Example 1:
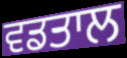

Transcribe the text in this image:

ਵਡਤਾਲ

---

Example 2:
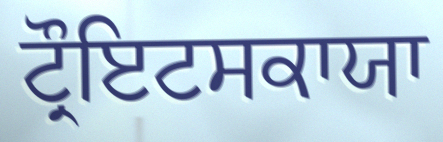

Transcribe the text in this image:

ਟ੍ਰੌਇਟਸਕਾਯਾ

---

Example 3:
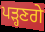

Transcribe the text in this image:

ਪੜ੍ਹਣਗੇ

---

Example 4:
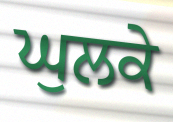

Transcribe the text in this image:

ਘੁਲਕੇ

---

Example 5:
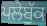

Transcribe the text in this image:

ਪਲੇਬੁੱਕ